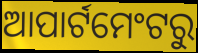
ଆପାର୍ଟମେଂଟରୁ